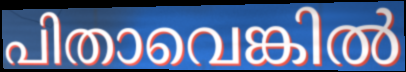
പിതാവെങ്കിൽ